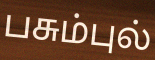
பசும்புல்